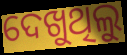
ଦେଖୁଥିଲୁ